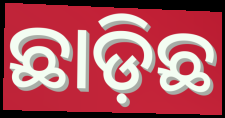
ଛାଡ଼ିଛ